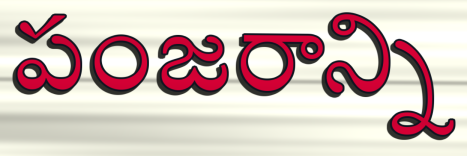
పంజరాన్ని